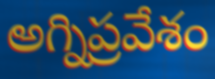
అగ్నిప్రవేశం